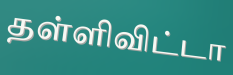
தள்ளிவிட்டா